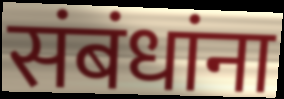
संबंधांना